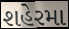
શહેરમા